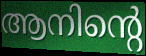
ആനിന്റെ